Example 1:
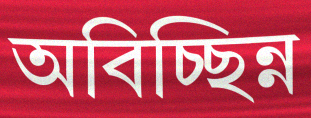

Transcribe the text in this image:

অবিচ্ছিন্ন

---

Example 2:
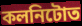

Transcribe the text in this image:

কলনিটোত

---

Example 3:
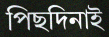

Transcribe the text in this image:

পিছদিনাই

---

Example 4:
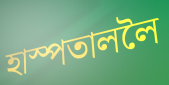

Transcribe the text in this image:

হাস্পতাললৈ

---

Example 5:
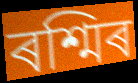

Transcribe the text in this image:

ৰশ্মিৰ